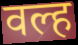
वल्ह